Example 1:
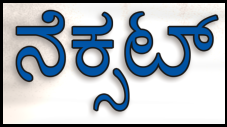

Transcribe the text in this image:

ನೆಕ್ಸಟ್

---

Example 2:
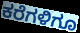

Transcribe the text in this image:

ಕರೆಗಳಿಗೂ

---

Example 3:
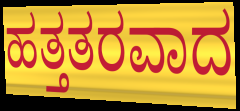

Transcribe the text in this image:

ಹತ್ತತರವಾದ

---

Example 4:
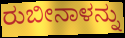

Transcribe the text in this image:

ರುಬೀನಾಳನ್ನು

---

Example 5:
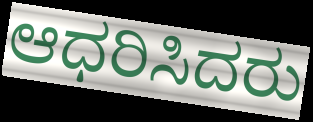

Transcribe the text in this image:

ಆಧರಿಸಿದರು